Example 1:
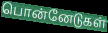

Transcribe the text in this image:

பொன்னேடுகள்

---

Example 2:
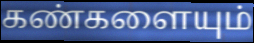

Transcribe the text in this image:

கண்களையும்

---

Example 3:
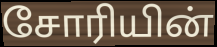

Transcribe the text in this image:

சோரியின்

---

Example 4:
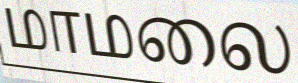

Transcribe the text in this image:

மாமலை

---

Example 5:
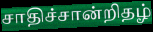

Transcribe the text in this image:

சாதிச்சான்றிதழ்